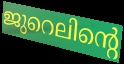
ജുറെലിന്റെ